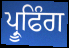
ਪ੍ਰੂਫਿੰਗ